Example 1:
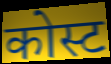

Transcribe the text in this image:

कोस्ट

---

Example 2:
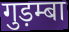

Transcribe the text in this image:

गुड़म्बा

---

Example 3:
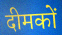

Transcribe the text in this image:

दीमकों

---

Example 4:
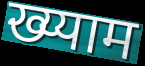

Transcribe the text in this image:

ख्य्याम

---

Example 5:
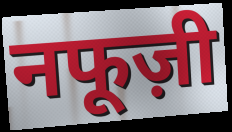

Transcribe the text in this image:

नफूज़ी